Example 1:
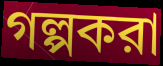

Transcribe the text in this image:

গল্পকরা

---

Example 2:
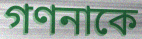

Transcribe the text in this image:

গণনাকে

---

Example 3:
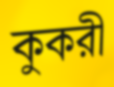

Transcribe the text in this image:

কুকরী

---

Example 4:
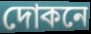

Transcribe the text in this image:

দোকনে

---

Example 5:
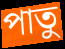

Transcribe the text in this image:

পাতু